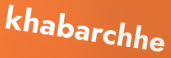
khabarchhe